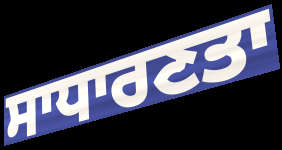
ਸਾਧਾਰਣਤਾ